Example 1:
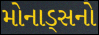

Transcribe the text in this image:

મોનાડ્સનો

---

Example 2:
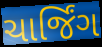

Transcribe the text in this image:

ચાર્જિંગ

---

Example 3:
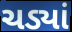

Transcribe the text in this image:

ચડ્યાં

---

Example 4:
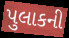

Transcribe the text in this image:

પુલાકની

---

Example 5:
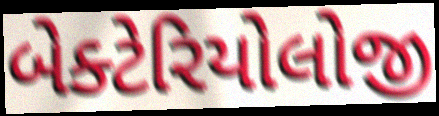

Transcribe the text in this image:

બેક્ટેરિયોલોજી